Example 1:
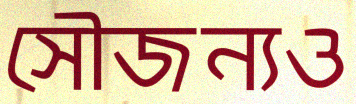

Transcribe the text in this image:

সৌজন্যও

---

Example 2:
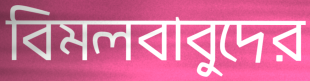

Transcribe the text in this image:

বিমলবাবুদের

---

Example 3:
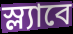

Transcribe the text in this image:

স্ল্যাবে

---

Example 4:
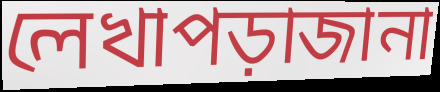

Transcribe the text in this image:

লেখাপড়াজানা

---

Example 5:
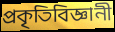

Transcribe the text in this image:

প্রকৃতিবিজ্ঞানী